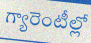
గ్యారెంటీల్లో